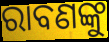
ରାବଣଙ୍କୁ